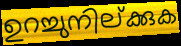
ഉറച്ചുനില്ക്കുക